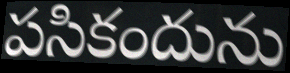
పసికందును